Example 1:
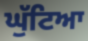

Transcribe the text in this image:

ਘੁੱਟਿਆ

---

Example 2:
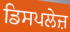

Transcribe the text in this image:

ਡਿਸਪਲੇਜ਼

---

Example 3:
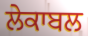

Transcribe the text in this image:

ਲੇਕਾਬਲ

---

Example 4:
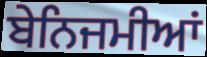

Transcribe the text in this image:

ਬੇਨਿਜਮੀਆਂ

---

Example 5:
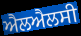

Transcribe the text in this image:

ਐਲਐਲਸੀ